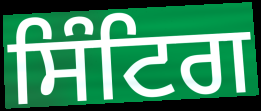
ਸਿੰਟਿਗ